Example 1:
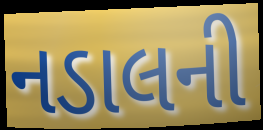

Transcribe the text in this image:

નડાલની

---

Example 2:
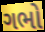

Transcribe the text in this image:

ગભો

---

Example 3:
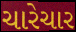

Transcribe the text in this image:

ચારેચાર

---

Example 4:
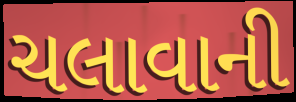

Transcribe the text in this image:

ચલાવાની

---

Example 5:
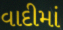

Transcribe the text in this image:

વાદીમાં